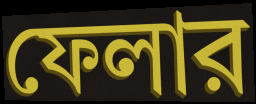
ফেলার